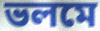
ভলমে